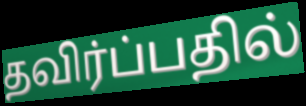
தவிர்ப்பதில்